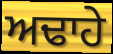
ਅਢਾਹੇ